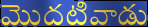
మొదటివాడు